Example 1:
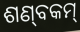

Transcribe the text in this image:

ଶଣ୍‌ବକମ୍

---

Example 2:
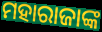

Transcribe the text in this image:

ମହାରାଜାଙ୍କ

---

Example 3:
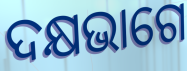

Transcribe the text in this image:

ଦକ୍ଷଭାଗେ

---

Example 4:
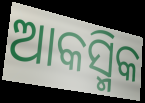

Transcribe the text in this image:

ଆକସ୍ମିକ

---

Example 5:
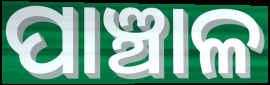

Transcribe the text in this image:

ପାଞ୍ଚାଳ